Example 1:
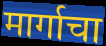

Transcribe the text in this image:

मार्गाचा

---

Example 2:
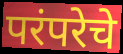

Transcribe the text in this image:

परंपरेचे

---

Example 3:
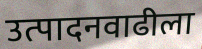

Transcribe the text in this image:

उत्पादनवाढीला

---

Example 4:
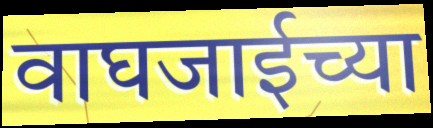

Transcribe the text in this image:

वाघजाईच्या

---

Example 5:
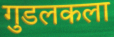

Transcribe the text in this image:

गुडलकला